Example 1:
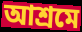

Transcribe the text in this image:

আশ্রমে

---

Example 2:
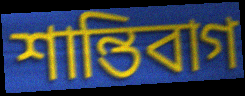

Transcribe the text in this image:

শান্তিবাগ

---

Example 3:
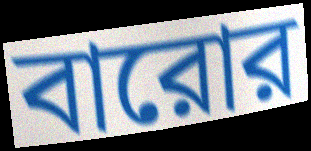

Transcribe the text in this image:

বারোর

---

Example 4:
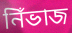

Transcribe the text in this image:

নিঁভাজ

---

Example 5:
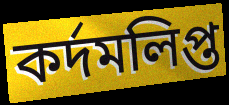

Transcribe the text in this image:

কর্দমলিপ্ত